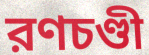
রণচণ্ডী